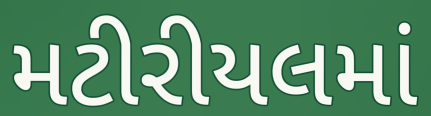
મટીરીયલમાં